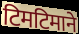
टिमटिमाने